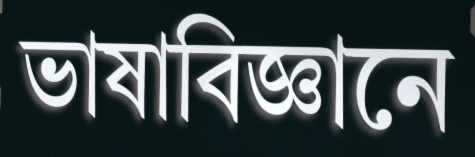
ভাষাবিজ্ঞানে